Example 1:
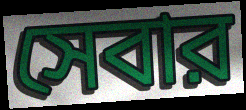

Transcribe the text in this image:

সেবার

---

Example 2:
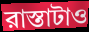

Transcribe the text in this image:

রাস্তাটাও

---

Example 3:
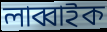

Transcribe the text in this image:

লাব্বাইক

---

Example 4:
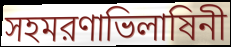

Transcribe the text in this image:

সহমরণাভিলাষিনী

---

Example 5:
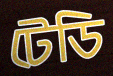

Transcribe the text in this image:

টেডি